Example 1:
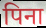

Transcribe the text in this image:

पिना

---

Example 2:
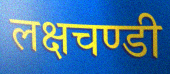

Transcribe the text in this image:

लक्षचण्डी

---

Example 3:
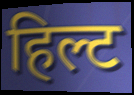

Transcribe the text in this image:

हिल्ट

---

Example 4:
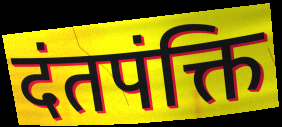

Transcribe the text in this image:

दंतपंक्ति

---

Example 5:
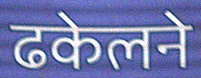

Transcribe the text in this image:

ढकेलने